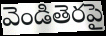
వెండితెరపై